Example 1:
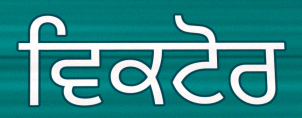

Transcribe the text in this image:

ਵਿਕਟੋਰ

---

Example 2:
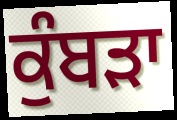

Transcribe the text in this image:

ਕੁੰਬੜਾ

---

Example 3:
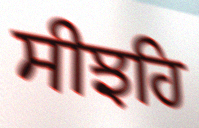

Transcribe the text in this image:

ਸੀਝਹਿ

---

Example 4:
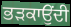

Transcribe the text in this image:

ਭੜਕਾਉਂਦੀ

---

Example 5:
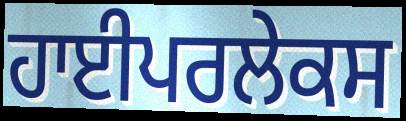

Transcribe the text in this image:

ਹਾਈਪਰਲੇਕਸ